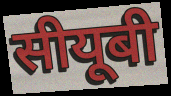
सीयूबी